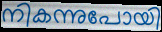
നികന്നുപോയി